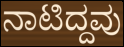
ನಾಟಿದ್ದವು